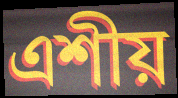
এশীয়